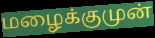
மழைக்குமுன்